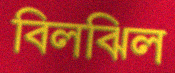
বিলঝিল